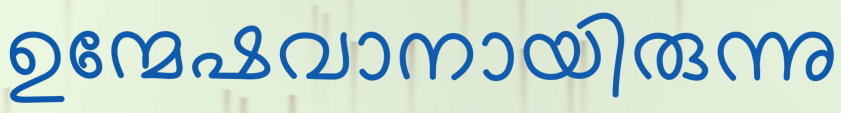
ഉന്മേഷവാനായിരുന്നു